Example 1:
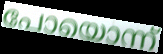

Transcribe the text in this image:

പോയൊന്ന്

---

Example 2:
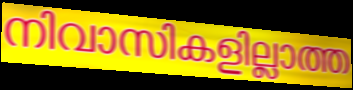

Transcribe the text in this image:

നിവാസികളില്ലാത്ത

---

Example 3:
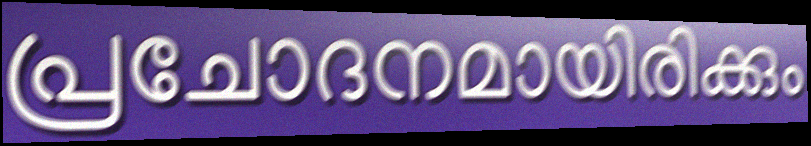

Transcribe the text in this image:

പ്രചോദനമായിരിക്കും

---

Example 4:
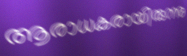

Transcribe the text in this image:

ആരാധകരായിരുന്നു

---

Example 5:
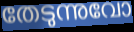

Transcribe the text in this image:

തേടുന്നുവോ